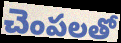
చెంపలతో